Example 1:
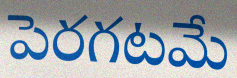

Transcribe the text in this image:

పెరగటమే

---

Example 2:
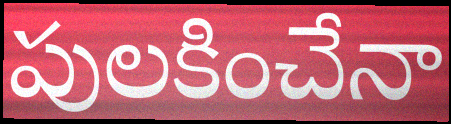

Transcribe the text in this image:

పులకించేనా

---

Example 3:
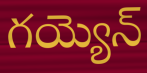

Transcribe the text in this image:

గయ్యెన్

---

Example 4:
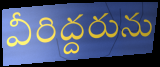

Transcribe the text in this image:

వీరిద్దరును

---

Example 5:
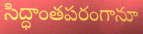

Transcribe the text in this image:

సిద్ధాంతపరంగానూ